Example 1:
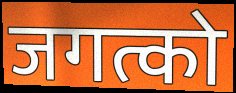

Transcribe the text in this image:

जगत्को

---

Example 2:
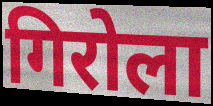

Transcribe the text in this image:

गिरोला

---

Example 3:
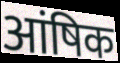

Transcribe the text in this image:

आंषिक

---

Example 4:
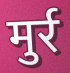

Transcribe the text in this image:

मुर्र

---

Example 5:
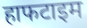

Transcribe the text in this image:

हाफटाइम